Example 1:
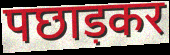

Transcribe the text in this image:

पछाड़कर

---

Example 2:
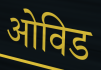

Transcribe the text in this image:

ओविड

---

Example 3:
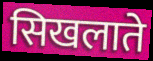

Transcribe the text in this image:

सिखलाते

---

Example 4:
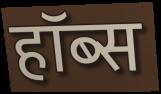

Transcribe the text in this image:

हॉब्स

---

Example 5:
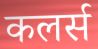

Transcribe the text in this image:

कलर्स